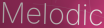
Melodic